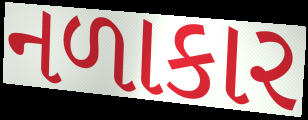
નળાકાર